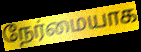
நேர்மையாக